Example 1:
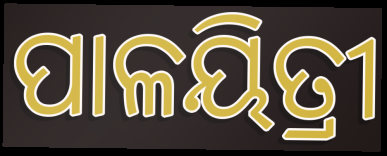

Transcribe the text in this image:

ପାଳୟିତ୍ରୀ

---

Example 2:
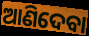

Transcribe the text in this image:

ଆଣିଦେବା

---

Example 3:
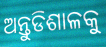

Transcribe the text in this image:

ଅନ୍ତୁଡିଶାଳକୁ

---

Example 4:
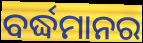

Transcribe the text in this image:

ବର୍ଦ୍ଧମାନର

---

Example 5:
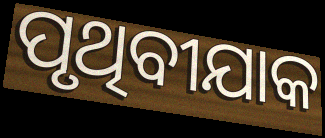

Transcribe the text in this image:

ପୃଥିବୀଯାକ